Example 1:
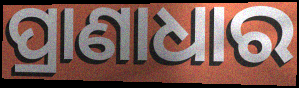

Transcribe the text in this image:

ପ୍ରାଣାଧାର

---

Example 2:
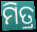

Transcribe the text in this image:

ମିତ୍ର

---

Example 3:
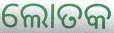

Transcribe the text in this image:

ଲୋତକ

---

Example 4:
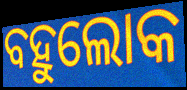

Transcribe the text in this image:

ବହୁଲୋକ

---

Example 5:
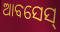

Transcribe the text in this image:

ଆବସେସ୍